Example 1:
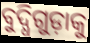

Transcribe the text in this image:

ବୁଦ୍ଧିଗୁଡ଼ାକୁ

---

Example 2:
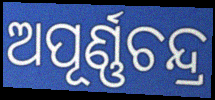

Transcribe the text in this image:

ଅପୂର୍ଣ୍ଣଚନ୍ଦ୍ର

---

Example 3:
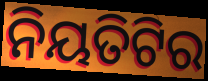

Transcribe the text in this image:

ନିୟତିଟିର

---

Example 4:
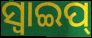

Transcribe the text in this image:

ସ୍ୱାଇପ୍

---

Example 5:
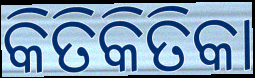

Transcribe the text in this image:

କିତିକିତିକା